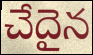
చేదైన